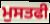
ਮੁਸਤਫੀ